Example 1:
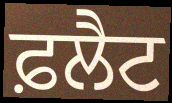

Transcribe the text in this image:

ਫ਼ਲੈਟ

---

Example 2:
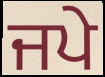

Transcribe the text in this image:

ਜਪੇ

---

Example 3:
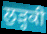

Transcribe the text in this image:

ਲੁੜ੍ਹਕੀ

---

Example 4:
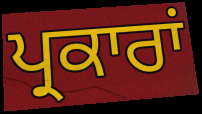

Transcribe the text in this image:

ਪ੍ਰਕਾਰਾਂ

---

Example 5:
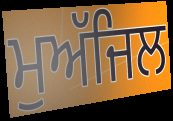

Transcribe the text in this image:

ਮੁਅੱਜਿਲ